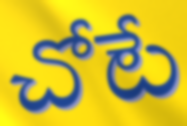
చోటే